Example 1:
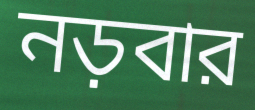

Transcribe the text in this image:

নড়বার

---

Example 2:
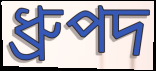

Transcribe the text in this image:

ধ্রুপদ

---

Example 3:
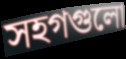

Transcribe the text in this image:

সহগগুলো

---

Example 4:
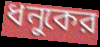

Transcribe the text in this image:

ধনুকের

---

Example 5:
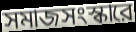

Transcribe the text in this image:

সমাজসংস্কারে